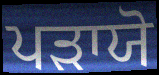
ਪੜਾਯੋ